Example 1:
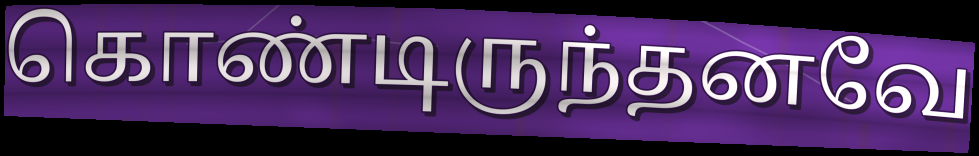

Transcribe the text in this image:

கொண்டிருந்தனவே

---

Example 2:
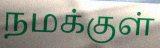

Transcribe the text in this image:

நமக்குள்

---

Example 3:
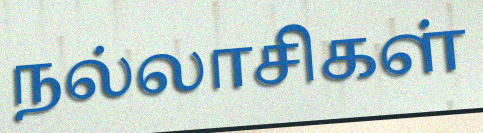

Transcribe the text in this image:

நல்லாசிகள்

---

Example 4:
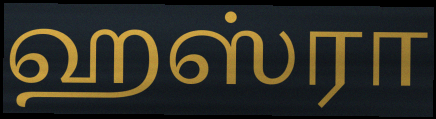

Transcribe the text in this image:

ஹஸ்ரா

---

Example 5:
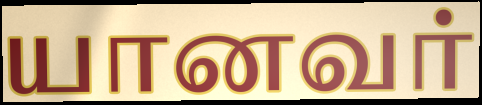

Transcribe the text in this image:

யானவர்